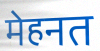
मेहनत